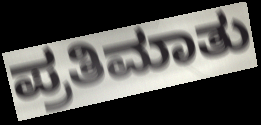
ಪ್ರತಿಮಾತು